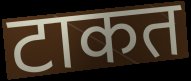
टाकत